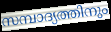
സമ്പാദ്യത്തിനും